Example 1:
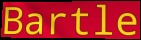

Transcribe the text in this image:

Bartle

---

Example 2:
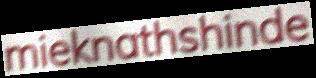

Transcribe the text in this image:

mieknathshinde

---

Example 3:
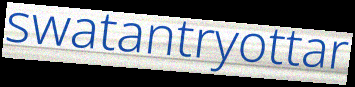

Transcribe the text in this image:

swatantryottar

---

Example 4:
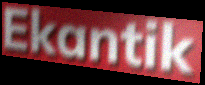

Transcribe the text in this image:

Ekantik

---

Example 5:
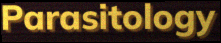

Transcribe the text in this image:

Parasitology